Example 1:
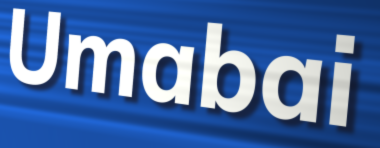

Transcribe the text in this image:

Umabai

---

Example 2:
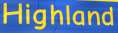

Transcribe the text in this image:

Highland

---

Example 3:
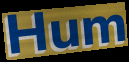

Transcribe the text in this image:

Hum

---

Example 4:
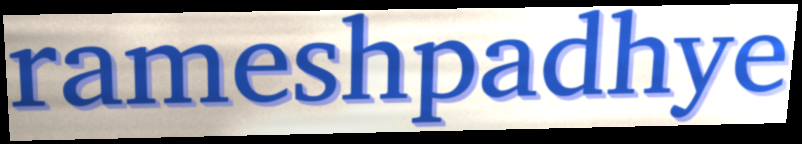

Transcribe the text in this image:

rameshpadhye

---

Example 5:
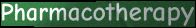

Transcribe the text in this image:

Pharmacotherapy